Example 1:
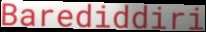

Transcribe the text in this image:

Barediddiri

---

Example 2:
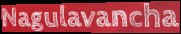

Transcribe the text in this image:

Nagulavancha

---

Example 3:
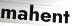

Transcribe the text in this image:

mahent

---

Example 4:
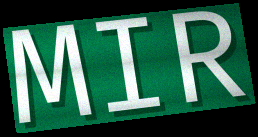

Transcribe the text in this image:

MIR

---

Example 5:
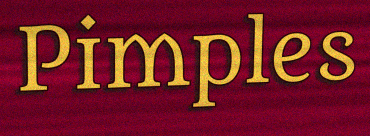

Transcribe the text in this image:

Pimples